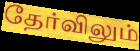
தேர்விலும்